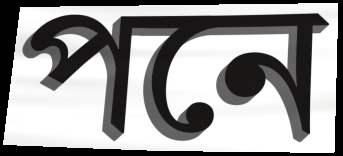
পনে